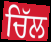
ਚਿੱਲ